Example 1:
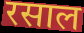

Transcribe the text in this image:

रसाल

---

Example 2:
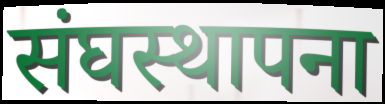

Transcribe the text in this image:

संघस्थापना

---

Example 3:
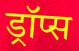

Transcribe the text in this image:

ड्रॉप्स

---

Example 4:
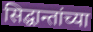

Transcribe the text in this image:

सिद्धान्तांच्या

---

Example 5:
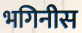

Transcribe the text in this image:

भगिनीस